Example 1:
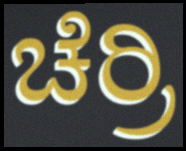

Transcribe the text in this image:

ಚೆರ್ರಿ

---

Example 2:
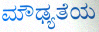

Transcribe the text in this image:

ಮೌಢ್ಯತೆಯ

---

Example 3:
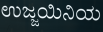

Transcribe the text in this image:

ಉಜ್ಜಯಿನಿಯ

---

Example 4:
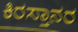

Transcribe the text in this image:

ಕಿರಸ್ತಾನರ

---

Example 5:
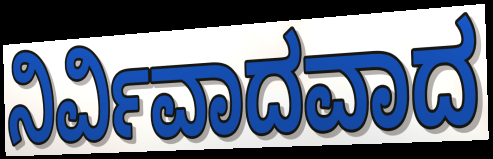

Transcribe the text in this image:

ನಿರ್ವಿವಾದವಾದ